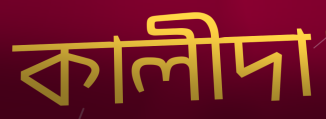
কালীদা